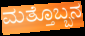
ಮತ್ತೊಬ್ಬನ